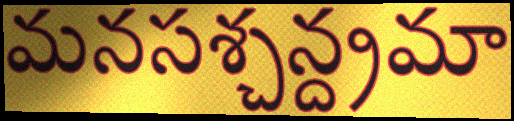
మనసశ్చన్ద్రమా